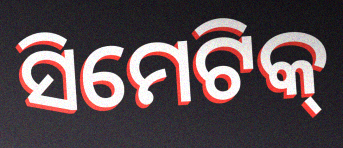
ସିମେଟିକ୍